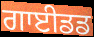
ਗਾਈਡਡ